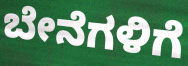
ಬೇನೆಗಳಿಗೆ